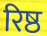
रिष्ठ